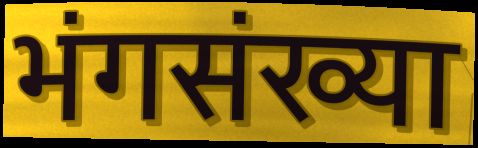
भंगसंख्या